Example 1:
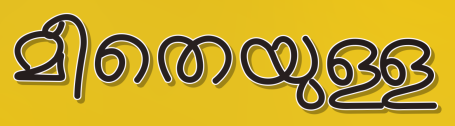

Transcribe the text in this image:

മീതെയുള്ള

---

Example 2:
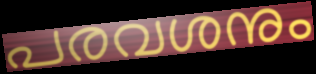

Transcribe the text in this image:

പരവശനും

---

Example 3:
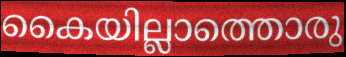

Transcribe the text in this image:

കൈയില്ലാത്തൊരു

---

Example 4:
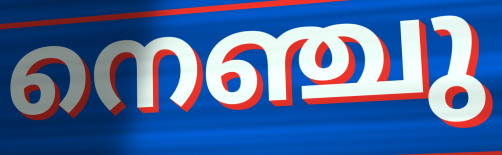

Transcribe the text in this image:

നെഞ്ചു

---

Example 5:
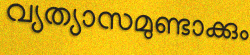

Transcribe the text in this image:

വ്യത്യാസമുണ്ടാക്കും